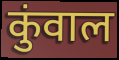
कुंवाल